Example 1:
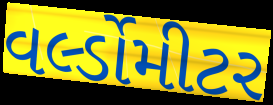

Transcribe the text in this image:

વર્લ્ડોમીટર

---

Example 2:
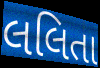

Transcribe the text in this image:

લલિતા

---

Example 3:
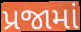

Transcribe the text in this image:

પ્રજામાં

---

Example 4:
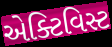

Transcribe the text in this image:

એક્ટિવિસ્ટ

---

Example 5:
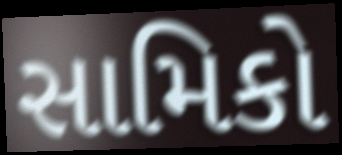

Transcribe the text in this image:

સામિકો